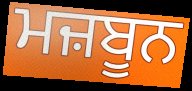
ਮਜ਼ਬੂਨ